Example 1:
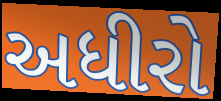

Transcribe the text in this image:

અધીરો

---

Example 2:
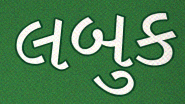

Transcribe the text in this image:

લબુક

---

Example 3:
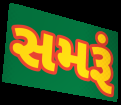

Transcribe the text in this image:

સમરૂં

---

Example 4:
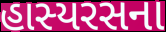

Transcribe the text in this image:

હાસ્યરસના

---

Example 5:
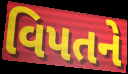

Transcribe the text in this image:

વિપતને